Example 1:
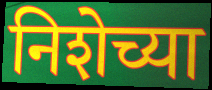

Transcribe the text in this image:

निशेच्या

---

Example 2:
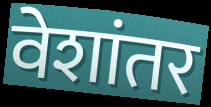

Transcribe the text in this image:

वेशांतर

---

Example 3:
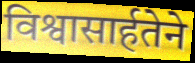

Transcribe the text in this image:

विश्वासार्हतेने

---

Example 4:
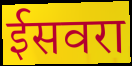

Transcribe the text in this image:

ईसवरा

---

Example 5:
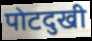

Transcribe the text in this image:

पोटदुखी